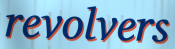
revolvers